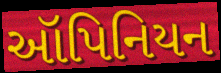
ઑપિનિયન